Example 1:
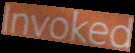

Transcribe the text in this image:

Invoked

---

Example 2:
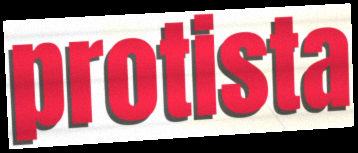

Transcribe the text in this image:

protista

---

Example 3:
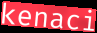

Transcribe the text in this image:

kenaci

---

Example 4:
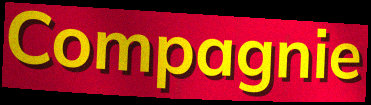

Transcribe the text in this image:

Compagnie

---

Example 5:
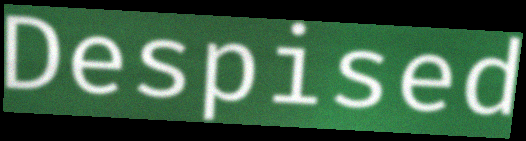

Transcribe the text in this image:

Despised